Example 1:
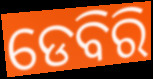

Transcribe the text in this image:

ଡେବିରି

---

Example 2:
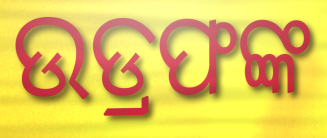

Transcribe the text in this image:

ଉଡ୍ରଫଙ୍କ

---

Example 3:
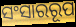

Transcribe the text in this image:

ସଂସାରରୂପ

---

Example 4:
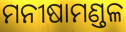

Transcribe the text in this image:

ମନୀଷାମଣ୍ଡଳ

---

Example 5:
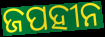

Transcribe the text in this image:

ଜପହୀନ